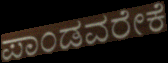
ಪಾಂಡವರೇಕೆ